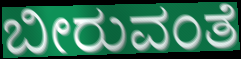
ಬೀರುವಂತೆ